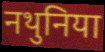
नथुनिया